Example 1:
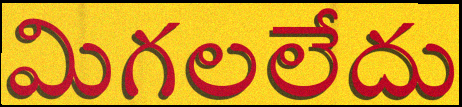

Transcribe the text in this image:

మిగలలేదు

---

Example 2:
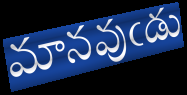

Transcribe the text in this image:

మానవుఁడు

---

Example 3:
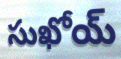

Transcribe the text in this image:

సుఖోయ్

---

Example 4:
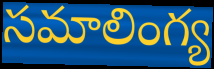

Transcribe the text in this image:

సమాలింగ్య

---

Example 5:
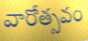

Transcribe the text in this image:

వారోత్సవం